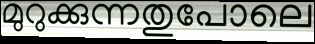
മുറുക്കുന്നതുപോലെ